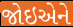
જોઇએને